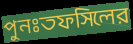
পুনঃতফসিলের